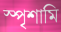
স্পৃশামি